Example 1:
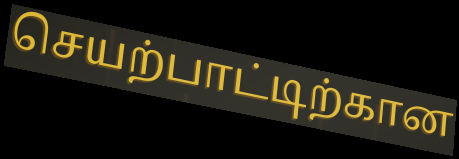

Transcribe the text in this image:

செயற்பாட்டிற்கான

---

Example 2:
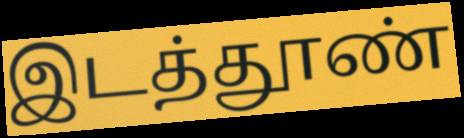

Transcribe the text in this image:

இடத்தூண்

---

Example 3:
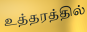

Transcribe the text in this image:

உத்தரத்தில்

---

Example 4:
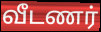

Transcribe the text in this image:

வீடணர்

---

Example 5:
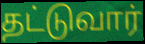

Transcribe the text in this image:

தட்டுவார்